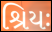
શ્રિયઃ